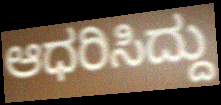
ಆಧರಿಸಿದ್ದು